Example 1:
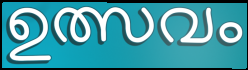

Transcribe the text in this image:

ഉത്സവം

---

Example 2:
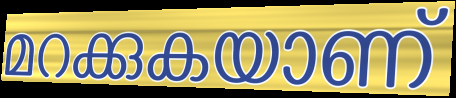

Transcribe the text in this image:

മറക്കുകയാണ്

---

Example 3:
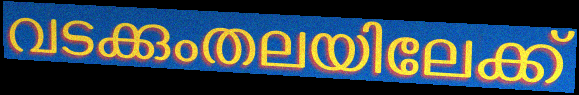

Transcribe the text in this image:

വടക്കുംതലയിലേക്ക്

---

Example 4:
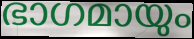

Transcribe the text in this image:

ഭാഗമായും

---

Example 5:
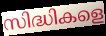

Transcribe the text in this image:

സിദ്ധികളെ